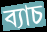
ব্যাচ